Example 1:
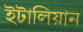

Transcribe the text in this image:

ইটালিয়ান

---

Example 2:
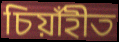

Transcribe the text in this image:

চিয়াঁহীত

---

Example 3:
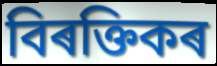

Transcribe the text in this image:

বিৰক্তিকৰ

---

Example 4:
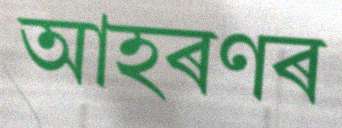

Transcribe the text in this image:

আহৰণৰ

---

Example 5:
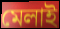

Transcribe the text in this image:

মেলাই